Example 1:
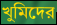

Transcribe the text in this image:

খুমিদের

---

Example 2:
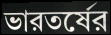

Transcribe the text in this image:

ভারতর্ষের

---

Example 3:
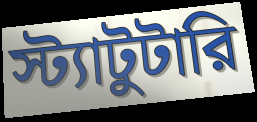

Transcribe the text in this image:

স্ট্যাটুটারি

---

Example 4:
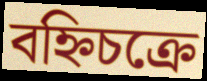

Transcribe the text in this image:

বহ্নিচক্রে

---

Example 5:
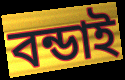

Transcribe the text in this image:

বন্ডাই